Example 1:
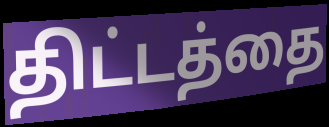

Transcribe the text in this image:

திட்டத்தை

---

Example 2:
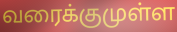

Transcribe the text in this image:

வரைக்குமுள்ள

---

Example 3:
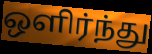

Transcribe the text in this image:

ஒளிர்ந்து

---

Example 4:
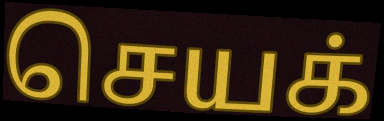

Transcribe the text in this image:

செயக்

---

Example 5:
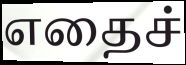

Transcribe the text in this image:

எதைச்